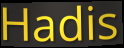
Hadis